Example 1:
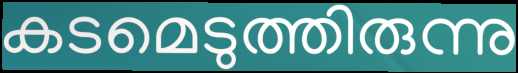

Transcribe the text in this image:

കടമെടുത്തിരുന്നു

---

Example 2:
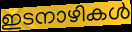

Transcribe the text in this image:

ഇടനാഴികൾ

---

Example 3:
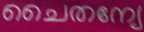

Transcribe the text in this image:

ചൈതന്യേ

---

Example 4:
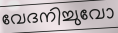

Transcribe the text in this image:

വേദനിച്ചുവോ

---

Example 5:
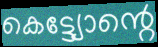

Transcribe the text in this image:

കെട്ട്യോന്റെ